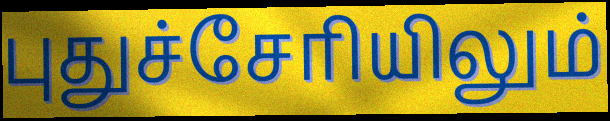
புதுச்சேரியிலும்